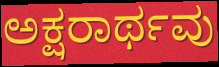
ಅಕ್ಷರಾರ್ಥವು